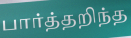
பார்த்தறிந்த